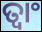
ତ୍ଵାଂ